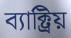
ব্যাক্ট্রিয়